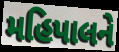
મહિપાલને